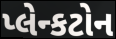
પ્લેન્કટોન